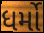
ધર્મો